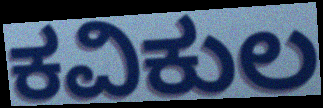
ಕವಿಕುಲ